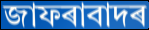
জাফৰাবাদৰ